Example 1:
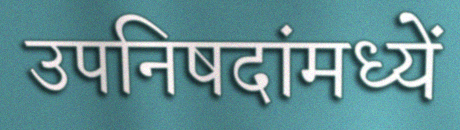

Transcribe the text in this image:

उपनिषदांमध्यें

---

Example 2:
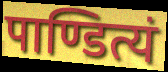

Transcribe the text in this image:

पाण्डित्यं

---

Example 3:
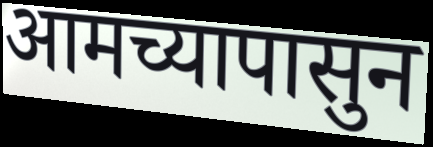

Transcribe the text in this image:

आमच्यापासुन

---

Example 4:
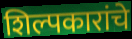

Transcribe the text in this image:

शिल्पकारांचे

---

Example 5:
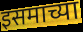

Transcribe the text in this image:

इसमाच्या